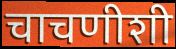
चाचणीशी